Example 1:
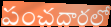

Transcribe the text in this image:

పంచదారలో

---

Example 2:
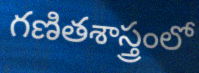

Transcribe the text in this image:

గణితశాస్త్రంలో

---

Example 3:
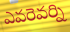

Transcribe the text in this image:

ఎవరెవర్ని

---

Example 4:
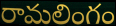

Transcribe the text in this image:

రామలింగం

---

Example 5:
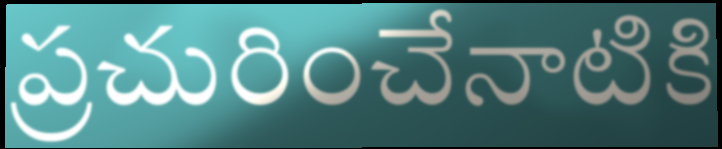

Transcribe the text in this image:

ప్రచురించేనాటికి